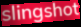
slingshot